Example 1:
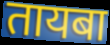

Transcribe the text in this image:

तायबा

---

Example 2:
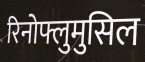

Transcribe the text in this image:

रिनोफ्लुमुसिल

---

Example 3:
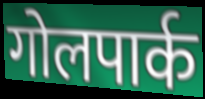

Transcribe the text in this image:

गोलपार्क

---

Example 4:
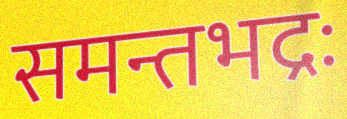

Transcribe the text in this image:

समन्तभद्रः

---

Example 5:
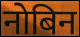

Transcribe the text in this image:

नोबिन